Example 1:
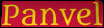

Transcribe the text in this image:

Panvel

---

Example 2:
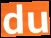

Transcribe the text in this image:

du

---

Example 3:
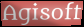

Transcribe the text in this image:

Agisoft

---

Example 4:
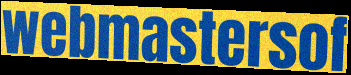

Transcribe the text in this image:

webmastersof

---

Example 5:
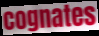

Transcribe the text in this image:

cognates